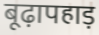
बूढ़ापहाड़